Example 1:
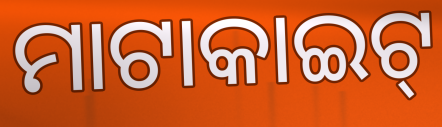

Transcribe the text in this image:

ମାଟାକାଇଟ୍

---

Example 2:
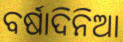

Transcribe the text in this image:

ବର୍ଷାଦିନିଆ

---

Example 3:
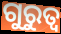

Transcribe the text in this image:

ଗୁରୁତ୍ୱ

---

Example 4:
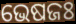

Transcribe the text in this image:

ଭେଷଜଃ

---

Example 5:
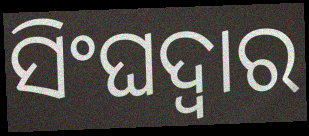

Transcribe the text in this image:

ସିଂଘଦ୍ୱାର